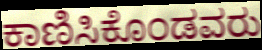
ಕಾಣಿಸಿಕೊಂಡವರು